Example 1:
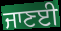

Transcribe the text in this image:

ਜਾਣਈ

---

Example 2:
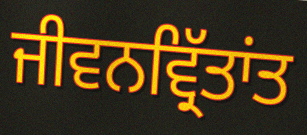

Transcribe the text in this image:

ਜੀਵਨਵ੍ਰਿੱਤਾਂਤ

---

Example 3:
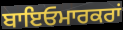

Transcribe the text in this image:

ਬਾਇਓਮਾਰਕਰਾਂ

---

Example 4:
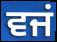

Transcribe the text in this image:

ਵਜਂ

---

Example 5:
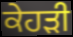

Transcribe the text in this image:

ਕੇਹੜੀ